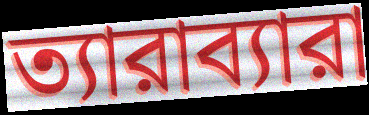
ত্যারাব্যারা